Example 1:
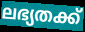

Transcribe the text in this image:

ലഭ്യതക്ക്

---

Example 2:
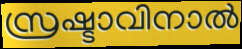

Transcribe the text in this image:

സ്രഷ്ടാവിനാൽ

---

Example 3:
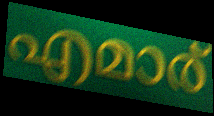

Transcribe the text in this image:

എമാര്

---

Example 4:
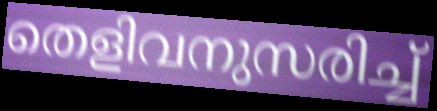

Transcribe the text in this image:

തെളിവനുസരിച്ച്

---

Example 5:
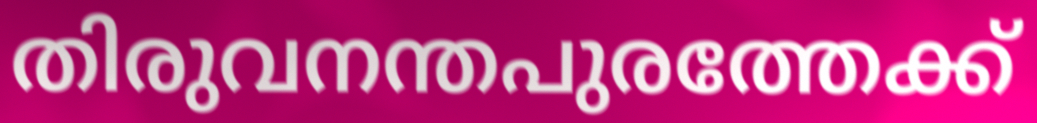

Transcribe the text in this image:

തിരുവനന്തപുരത്തേക്ക്